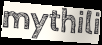
mythili